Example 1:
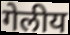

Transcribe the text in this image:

गेलीय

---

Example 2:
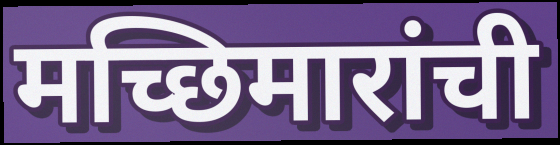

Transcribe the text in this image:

मच्छिमारांची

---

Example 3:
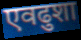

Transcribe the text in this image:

एवढुशा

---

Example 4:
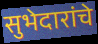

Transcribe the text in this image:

सुभेदारांचे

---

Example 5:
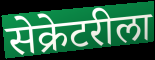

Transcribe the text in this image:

सेक्रेटरीला